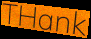
THank